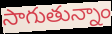
సాగుతున్నాం